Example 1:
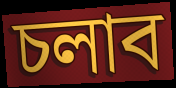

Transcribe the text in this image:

চলাব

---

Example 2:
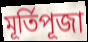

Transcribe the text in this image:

মূৰ্তিপূজা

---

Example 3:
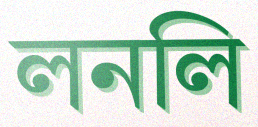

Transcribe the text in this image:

লনলি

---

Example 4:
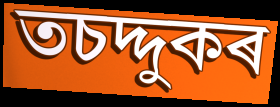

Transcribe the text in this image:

তচদ্দুকৰ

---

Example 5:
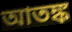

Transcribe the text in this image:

আতঙ্ক